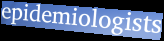
epidemiologists